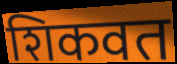
शिकवत